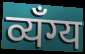
व्यँग्य